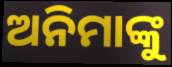
ଅନିମାଙ୍କୁ